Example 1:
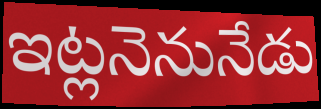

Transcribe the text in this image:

ఇట్లనెనునేడు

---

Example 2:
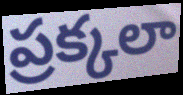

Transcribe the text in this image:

ప్రక్కలా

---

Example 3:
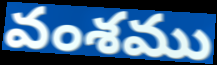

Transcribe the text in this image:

వంశము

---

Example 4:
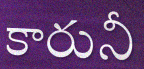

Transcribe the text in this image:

కారునీ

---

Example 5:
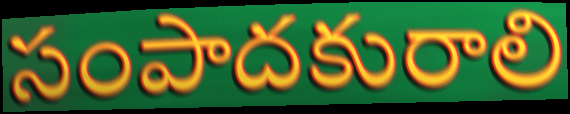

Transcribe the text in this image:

సంపాదకురాలి